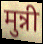
मुन्नी